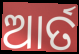
ଆର୍ତ